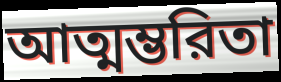
আত্মম্ভরিতা